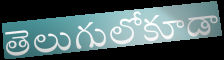
తెలుగులోకూడా